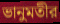
ভানুমতীর